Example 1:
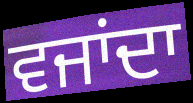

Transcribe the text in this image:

ਵਜਾਂਦਾ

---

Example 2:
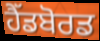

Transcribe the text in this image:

ਹੈੱਡਬੋਰਡ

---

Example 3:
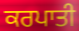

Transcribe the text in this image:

ਕਰਪਾਤੀ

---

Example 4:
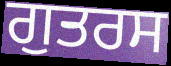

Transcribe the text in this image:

ਗੁਤਰਸ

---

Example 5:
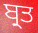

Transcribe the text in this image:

ਬ੍ਰਤ